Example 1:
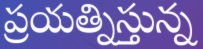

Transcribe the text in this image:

ప్రయత్నిస్తున్న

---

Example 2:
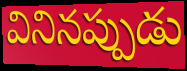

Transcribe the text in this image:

వినినప్పుడు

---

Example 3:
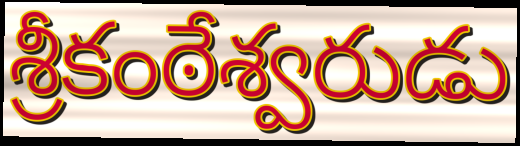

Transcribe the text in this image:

శ్రీకంఠేశ్వరుడు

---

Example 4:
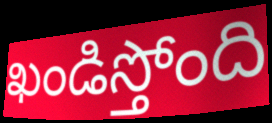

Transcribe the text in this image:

ఖండిస్తోంది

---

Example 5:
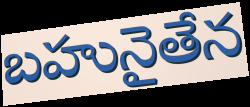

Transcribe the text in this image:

బహునైతేన